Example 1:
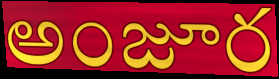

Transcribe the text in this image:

అంజూర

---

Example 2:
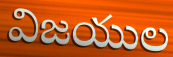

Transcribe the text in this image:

విజయుల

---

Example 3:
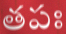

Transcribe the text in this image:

తపః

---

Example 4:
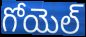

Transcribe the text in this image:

గోయెల్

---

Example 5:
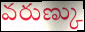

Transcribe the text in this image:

వరుణ్కు